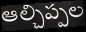
ఆల్చిప్పల